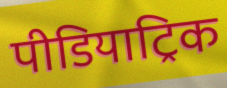
पीडियाट्रिक